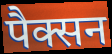
पैक्सन